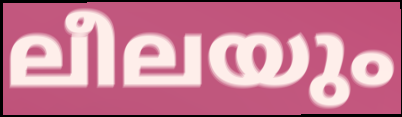
ലീലയും